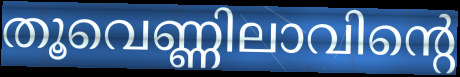
തൂവെണ്ണിലാവിന്റെ